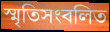
স্মৃতিসংবলিত